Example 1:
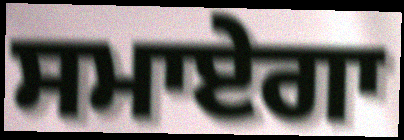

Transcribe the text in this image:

ਸਮਾਏਗਾ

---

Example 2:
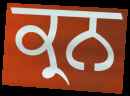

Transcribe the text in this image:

ਕ੍ਰਨ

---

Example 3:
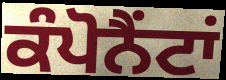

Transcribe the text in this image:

ਕੰਪੋਨੈਂਟਾਂ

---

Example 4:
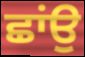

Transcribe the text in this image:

ਛਾਂਉ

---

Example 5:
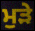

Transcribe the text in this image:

ਮੁੜੇ